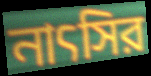
নাৎসির